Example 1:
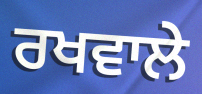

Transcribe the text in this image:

ਰਖਵਾਲੇ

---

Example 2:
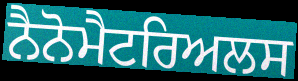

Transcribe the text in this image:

ਨੈਨੋਮੈਟਰਿਅਲਸ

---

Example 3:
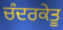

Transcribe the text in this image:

ਚੰਦਰਕੇਤੂ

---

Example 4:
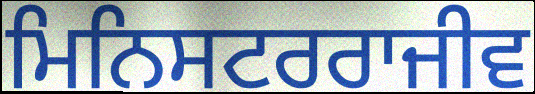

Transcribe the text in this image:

ਮਿਨਿਸਟਰਰਾਜੀਵ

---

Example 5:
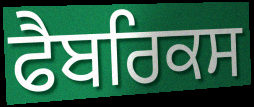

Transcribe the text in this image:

ਫੈਬਰਿਕਸ